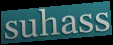
suhass